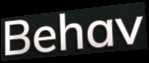
Behav